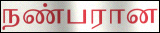
நண்பரான